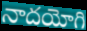
నాదయోగి